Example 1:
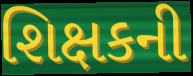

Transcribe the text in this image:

શિક્ષકની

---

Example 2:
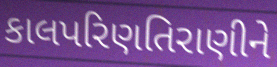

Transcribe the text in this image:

કાલપરિણતિરાણીને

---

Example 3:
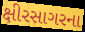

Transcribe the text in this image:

ક્ષીરસાગરના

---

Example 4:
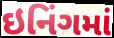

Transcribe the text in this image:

ઇનિંગમાં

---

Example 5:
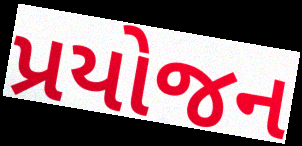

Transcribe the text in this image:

પ્રયોજન